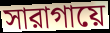
সারাগায়ে